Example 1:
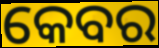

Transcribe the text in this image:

କେବର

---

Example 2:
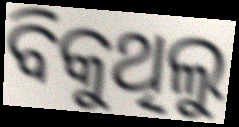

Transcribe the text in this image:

ବିକୁଥିଲୁ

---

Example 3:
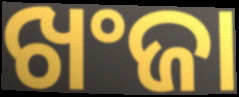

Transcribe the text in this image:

ଖଂଜା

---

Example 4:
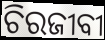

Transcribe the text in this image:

ଚିରଜୀବୀ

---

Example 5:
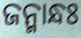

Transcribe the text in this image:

ଜନ୍ମାନ୍ଧଃ